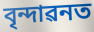
বৃন্দাৱনত